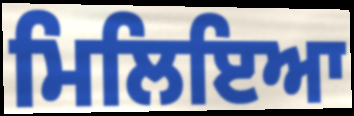
ਮਿਲਿਇਆ